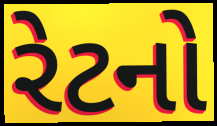
રેટનો